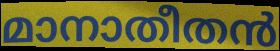
മാനാതീതൻ